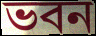
ভবন